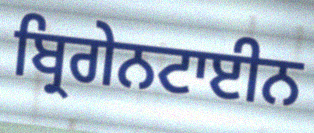
ਬ੍ਰਿਗੇਨਟਾਈਨ